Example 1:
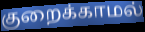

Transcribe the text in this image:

குறைக்காமல்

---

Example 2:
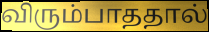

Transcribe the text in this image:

விரும்பாததால்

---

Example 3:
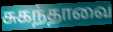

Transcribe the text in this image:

சுகந்தாவை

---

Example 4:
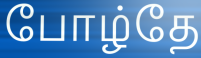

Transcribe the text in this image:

போழ்தே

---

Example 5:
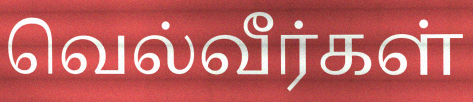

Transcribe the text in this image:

வெல்வீர்கள்